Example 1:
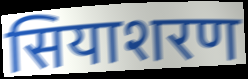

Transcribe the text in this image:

सियाशरण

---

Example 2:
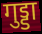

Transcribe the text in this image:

गुड्डा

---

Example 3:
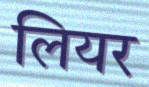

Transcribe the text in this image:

लियर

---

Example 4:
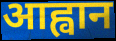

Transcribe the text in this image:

आह्वान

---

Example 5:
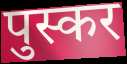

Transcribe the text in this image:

पुस्कर